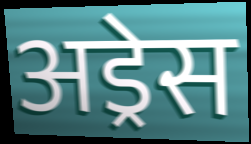
अड्रेस